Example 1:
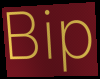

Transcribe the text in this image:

Bip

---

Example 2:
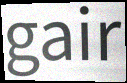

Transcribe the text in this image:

gair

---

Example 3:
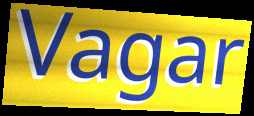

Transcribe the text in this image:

Vagar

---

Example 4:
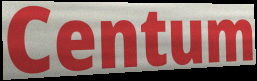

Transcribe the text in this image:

Centum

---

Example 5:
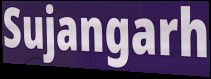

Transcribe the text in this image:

Sujangarh